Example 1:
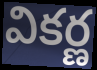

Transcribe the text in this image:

వికర్ణ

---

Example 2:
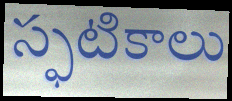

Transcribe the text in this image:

స్ఫటికాలు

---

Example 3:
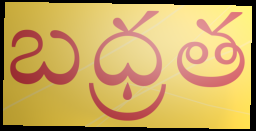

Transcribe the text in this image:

బధ్రత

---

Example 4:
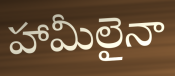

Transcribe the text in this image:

హామీలైనా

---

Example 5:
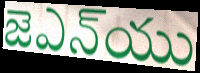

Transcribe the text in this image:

జెఎన్‌యు